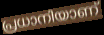
പ്രധാനിയാണ്